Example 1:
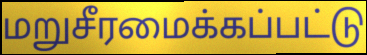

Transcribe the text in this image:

மறுசீரமைக்கப்பட்டு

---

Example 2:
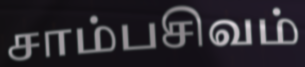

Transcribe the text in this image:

சாம்பசிவம்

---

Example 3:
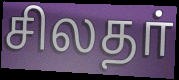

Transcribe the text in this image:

சிலதர்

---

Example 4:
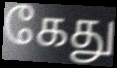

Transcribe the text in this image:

கேது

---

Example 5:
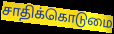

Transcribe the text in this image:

சாதிக்கொடுமை